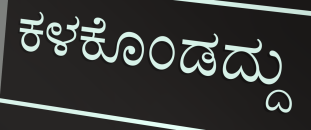
ಕಳಕೊಂಡದ್ದು